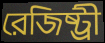
রেজিষ্ট্রী